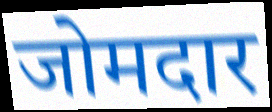
जोमदार